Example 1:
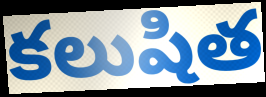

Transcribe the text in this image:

కలుషిత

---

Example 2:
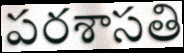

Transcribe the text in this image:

పరశాసతి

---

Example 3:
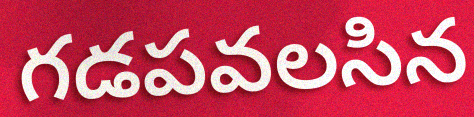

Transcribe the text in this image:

గడపవలసిన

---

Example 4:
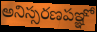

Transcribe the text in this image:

అనిస్సరణపఞ్ఞో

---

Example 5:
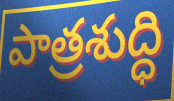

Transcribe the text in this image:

పాత్రశుద్ధి